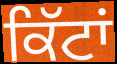
ਕਿੱਟਾਂ